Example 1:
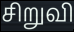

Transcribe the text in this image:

சிறுவி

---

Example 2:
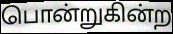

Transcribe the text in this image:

பொன்றுகின்ற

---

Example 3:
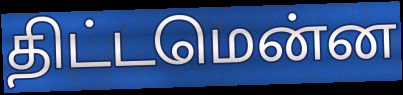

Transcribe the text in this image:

திட்டமென்ன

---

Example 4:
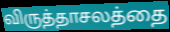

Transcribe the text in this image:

விருத்தாசலத்தை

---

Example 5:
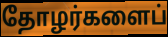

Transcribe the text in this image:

தோழர்களைப்